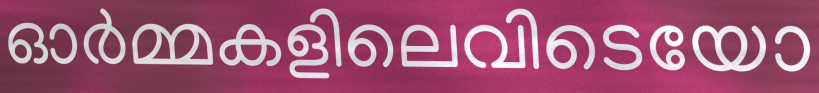
ഓർമ്മകളിലെവിടെയോ